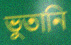
ভুতানি